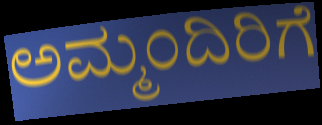
ಅಮ್ಮಂದಿರಿಗೆ